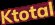
Ktotal